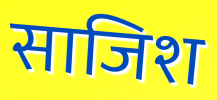
साजिश